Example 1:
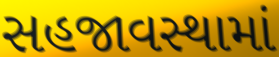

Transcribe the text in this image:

સહજાવસ્થામાં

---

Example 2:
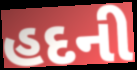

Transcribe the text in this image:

હદની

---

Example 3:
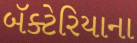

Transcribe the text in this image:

બૅક્ટેરિયાના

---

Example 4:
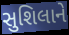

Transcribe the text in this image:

સુશિલાને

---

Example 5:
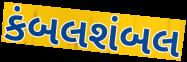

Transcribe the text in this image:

કંબલશંબલ